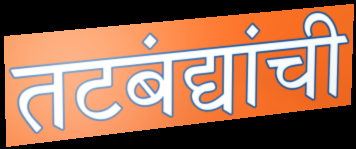
तटबंद्यांची